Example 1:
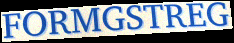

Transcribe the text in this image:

FORMGSTREG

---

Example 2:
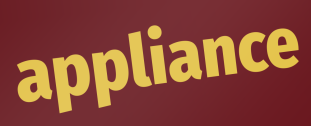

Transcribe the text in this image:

appliance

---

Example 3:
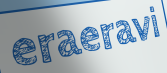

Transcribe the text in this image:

eraeravi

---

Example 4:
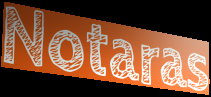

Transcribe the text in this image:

Notaras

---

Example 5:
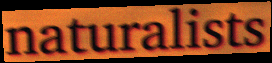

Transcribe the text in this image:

naturalists